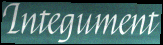
Integument